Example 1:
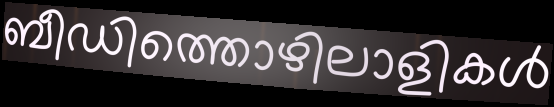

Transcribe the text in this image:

ബീഡിത്തൊഴിലാളികൾ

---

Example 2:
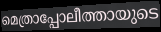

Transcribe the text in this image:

മെത്രാപ്പോലീത്തായുടെ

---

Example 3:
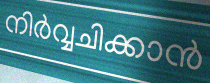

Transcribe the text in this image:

നിർവ്വചിക്കാൻ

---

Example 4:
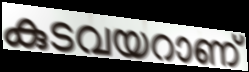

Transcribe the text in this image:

കുടവയറാണ്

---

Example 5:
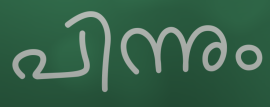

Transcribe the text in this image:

പിന്നും